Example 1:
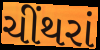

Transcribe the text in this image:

ચીંથરાં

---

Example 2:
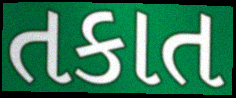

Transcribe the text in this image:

તકાત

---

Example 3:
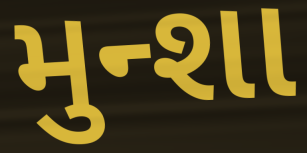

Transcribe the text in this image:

મુન્શા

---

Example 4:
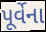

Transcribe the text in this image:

પૂર્વેના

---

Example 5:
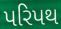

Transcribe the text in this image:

પરિપથ